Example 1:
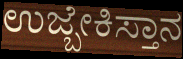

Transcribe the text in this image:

ಉಜ್ಬೇಕಿಸ್ತಾನ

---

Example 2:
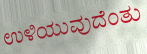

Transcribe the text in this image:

ಉಳಿಯುವುದೆಂತು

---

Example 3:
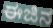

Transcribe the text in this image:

ಈಜಿನ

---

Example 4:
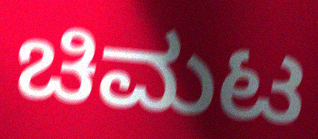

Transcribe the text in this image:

ಚಿಮಟ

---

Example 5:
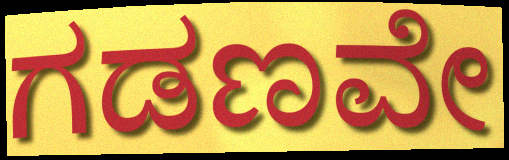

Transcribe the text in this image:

ಗಡಣವೇ